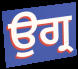
ਉਗ੍ਰ